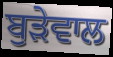
ਬੁੜੇਵਾਲ